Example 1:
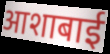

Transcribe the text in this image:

आशाबाई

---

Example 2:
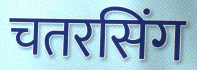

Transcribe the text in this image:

चतरसिंग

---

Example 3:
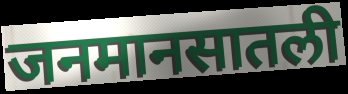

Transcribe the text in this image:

जनमानसातली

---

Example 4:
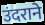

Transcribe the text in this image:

उंदराने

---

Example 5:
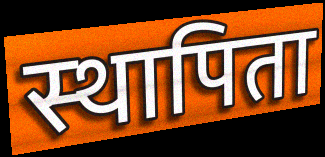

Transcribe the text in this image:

स्थापिता